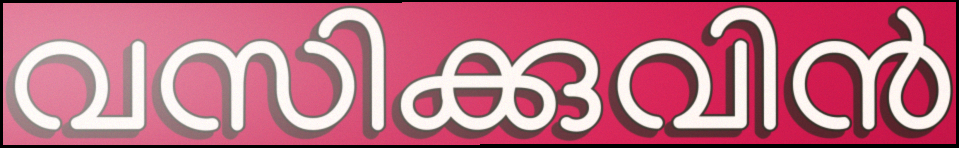
വസിക്കുവിൻ